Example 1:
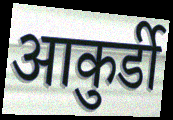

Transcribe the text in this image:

आकुर्डी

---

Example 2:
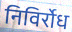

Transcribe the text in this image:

निविर्रोध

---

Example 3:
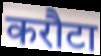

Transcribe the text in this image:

करौटा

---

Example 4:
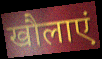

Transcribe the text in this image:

खौलाएं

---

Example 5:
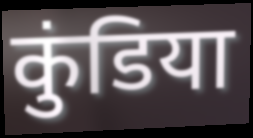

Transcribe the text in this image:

कुंडिया